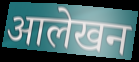
आलेखन